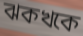
ঝকখকে